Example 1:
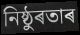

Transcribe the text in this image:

নিষ্ঠুৰতাৰ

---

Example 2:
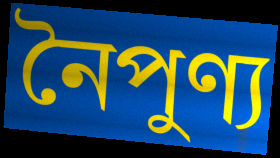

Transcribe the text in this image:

নৈপুণ্য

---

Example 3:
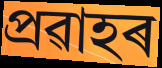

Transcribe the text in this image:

প্ৰৱাহৰ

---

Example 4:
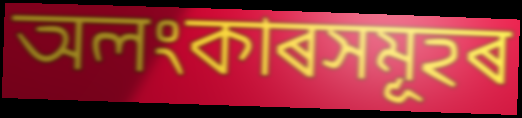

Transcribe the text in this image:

অলংকাৰসমূহৰ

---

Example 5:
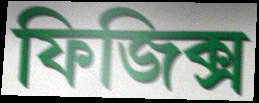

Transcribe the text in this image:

ফিজিক্স